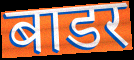
बाडर